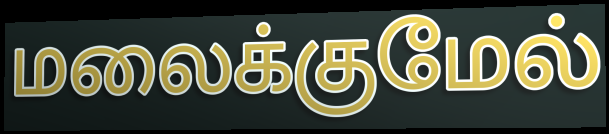
மலைக்குமேல்